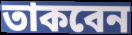
তাকবেন